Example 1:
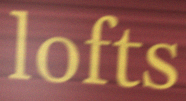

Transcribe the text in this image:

lofts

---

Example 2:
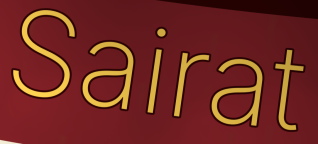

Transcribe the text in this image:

Sairat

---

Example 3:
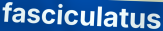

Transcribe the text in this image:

fasciculatus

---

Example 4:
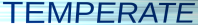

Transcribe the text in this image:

TEMPERATE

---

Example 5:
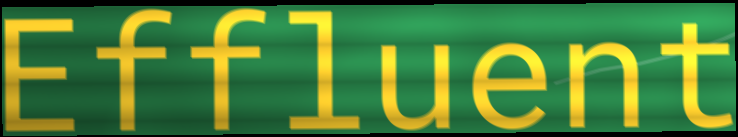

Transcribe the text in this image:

Effluent